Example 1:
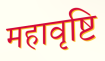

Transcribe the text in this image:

महावृष्टि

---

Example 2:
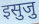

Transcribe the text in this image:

इसुजु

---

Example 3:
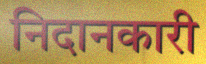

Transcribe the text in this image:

निदानकारी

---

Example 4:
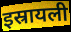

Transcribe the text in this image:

इस्रायली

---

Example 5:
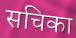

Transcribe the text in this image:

सचिका